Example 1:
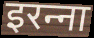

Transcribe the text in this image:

इरन्ना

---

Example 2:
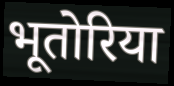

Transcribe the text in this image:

भूतोरिया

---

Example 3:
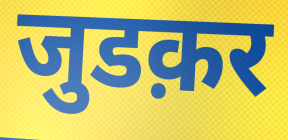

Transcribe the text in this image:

जुडक़र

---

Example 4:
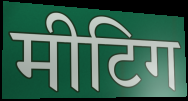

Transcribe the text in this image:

मीटिग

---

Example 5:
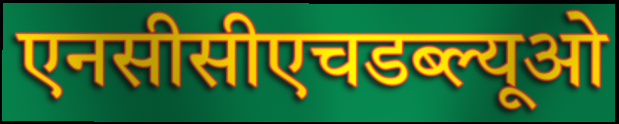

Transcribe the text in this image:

एनसीसीएचडब्ल्यूओ